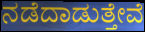
ನಡೆದಾಡುತ್ತೇವೆ